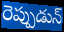
రెప్పుడున్